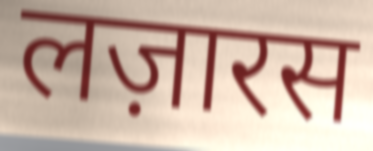
लज़ारस